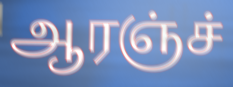
ஆரஞ்ச்